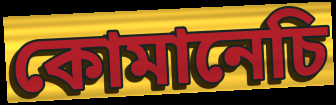
কোমানেচি